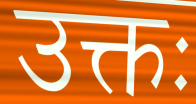
उक्तः